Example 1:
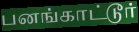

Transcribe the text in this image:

பனங்காட்டூர்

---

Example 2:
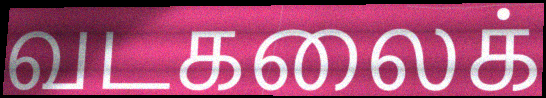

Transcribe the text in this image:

வடகலைக்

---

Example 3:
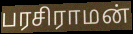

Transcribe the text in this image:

பரசிராமன்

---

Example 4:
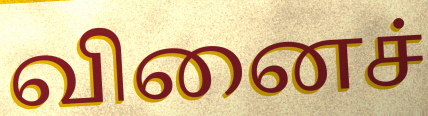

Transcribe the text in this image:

வினைச்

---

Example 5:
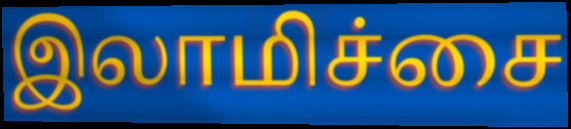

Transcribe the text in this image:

இலாமிச்சை